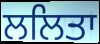
ਲਲਿਤਾ